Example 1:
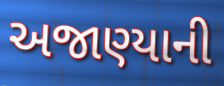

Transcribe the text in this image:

અજાણ્યાની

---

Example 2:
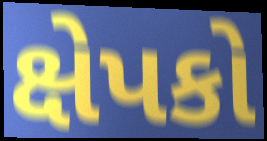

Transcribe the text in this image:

ક્ષેપકો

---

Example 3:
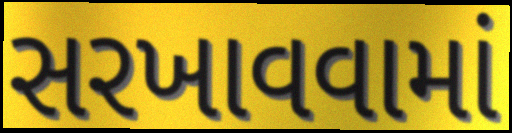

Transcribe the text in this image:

સરખાવવામાં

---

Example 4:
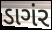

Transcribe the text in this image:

ડાગંર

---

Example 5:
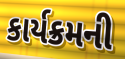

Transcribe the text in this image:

કાર્યક્રમની